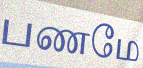
பணமே